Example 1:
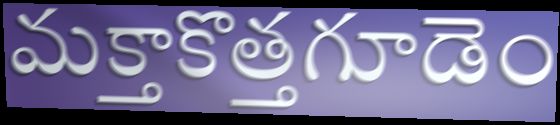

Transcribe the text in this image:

మక్తాకొత్తగూడెం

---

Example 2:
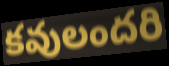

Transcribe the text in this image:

కవులందరి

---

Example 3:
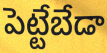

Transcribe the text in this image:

పెట్టేబేడా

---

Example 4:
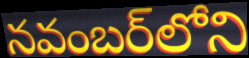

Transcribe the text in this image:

నవంబర్‌లోని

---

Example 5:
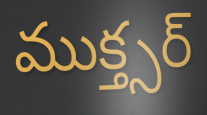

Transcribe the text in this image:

ముక్త్సర్